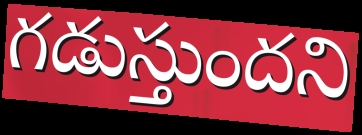
గడుస్తుందని